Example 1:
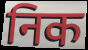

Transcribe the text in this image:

निक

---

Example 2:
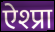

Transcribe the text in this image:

ऐश्प्रा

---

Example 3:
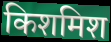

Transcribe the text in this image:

किशमिश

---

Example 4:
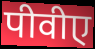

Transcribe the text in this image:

पीवीए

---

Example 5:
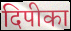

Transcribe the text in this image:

दिपीका